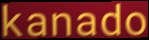
kanado